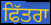
ਫਿੱਤਰਾ